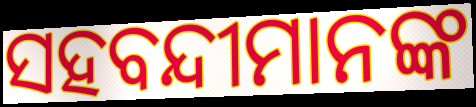
ସହବନ୍ଦୀମାନଙ୍କ